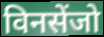
विनसेंजो